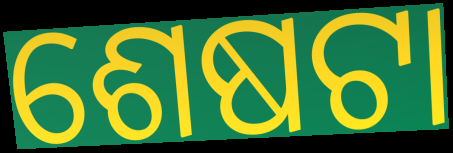
ଶେଷଟା